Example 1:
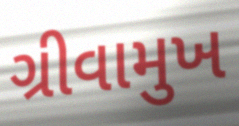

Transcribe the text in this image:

ગ્રીવામુખ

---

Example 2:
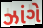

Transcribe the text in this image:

ઝાંગે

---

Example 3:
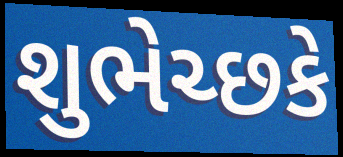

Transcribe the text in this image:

શુભેચ્છકે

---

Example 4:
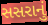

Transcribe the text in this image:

સસરાનું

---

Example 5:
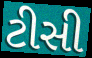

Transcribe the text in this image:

ટીસી